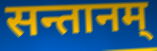
सन्तानम्